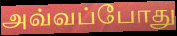
அவ்வப்போது